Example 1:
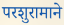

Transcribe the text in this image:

परशुरामाने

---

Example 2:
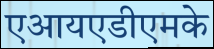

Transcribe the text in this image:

एआयएडीएमके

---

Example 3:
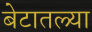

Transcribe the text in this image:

बेटातल्या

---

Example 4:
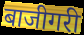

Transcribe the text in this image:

बाजीगरी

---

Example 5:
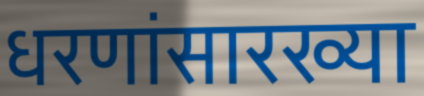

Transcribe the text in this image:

धरणांसारख्या